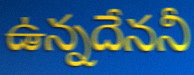
ఉన్నదేననీ